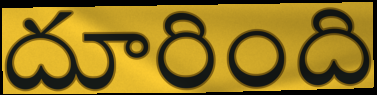
దూరింది